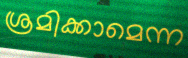
ശ്രമിക്കാമെന്ന